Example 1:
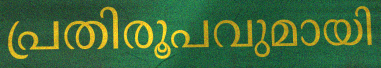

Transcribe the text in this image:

പ്രതിരൂപവുമായി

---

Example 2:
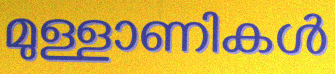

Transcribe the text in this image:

മുള്ളാണികൾ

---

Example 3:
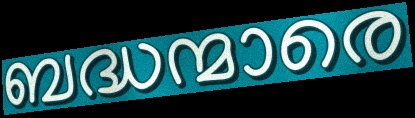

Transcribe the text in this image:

ബദ്ധന്മാരെ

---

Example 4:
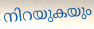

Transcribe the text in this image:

നിറയുകയും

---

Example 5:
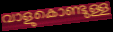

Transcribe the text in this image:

വാളുകൊണ്ടുള്ള